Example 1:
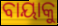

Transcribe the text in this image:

ବାୟାକୁ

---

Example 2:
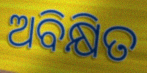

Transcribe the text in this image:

ଅବିକ୍ଷିତ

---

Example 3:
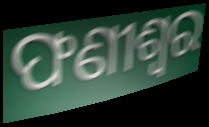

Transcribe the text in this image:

ଫଣୀଶ୍ୱର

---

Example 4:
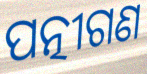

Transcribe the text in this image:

ପତ୍ନୀଗଣ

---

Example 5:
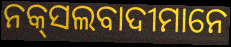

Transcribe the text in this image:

ନକ୍‌ସଲବାଦୀମାନେ